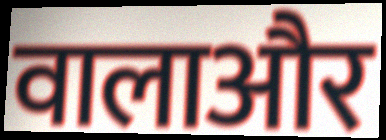
वालाऔर